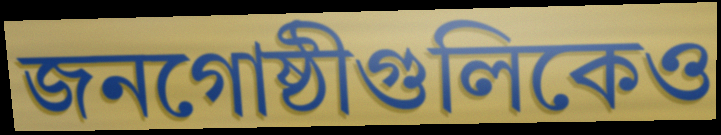
জনগোষ্ঠীগুলিকেও